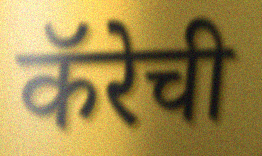
कॅरेची